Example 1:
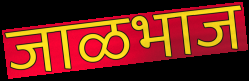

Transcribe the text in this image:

जाळभाज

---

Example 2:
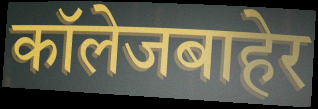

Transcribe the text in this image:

कॉलेजबाहेर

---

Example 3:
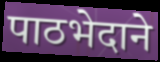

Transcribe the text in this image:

पाठभेदाने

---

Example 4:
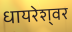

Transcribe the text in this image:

धायरेश्वर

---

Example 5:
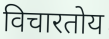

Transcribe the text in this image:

विचारतोय